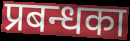
प्रबन्धका